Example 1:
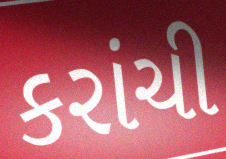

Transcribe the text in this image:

કરાંચી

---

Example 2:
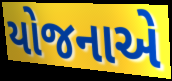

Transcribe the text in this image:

યોજનાએ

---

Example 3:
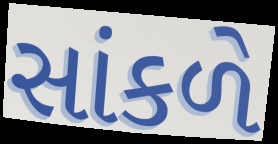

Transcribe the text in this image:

સાંકળે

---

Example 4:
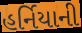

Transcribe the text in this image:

હર્નિયાની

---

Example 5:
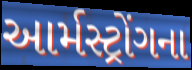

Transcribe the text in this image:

આર્મસ્ટ્રોંગના